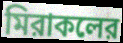
মিরাকলের